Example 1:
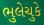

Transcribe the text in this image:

ભુલેચુકે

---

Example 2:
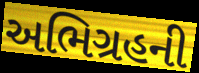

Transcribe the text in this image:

અભિગ્રહની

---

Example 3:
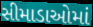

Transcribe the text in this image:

સીમાડાઓમાં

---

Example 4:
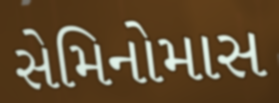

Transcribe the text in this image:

સેમિનોમાસ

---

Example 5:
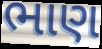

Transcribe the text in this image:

ભાણ